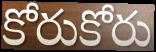
కోరుకోరు